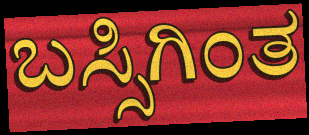
ಬಸ್ಸಿಗಿಂತ